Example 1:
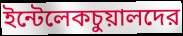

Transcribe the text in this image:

ইন্টেলেকচুয়ালদের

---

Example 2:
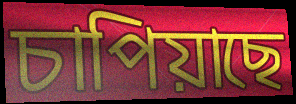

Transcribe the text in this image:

চাপিয়াছে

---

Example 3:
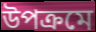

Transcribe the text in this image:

উপক্রমে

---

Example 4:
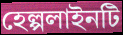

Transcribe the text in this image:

হেল্পলাইনটি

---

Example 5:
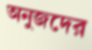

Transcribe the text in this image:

অনুজদের